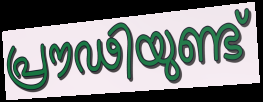
പ്രൗഢിയുണ്ട്